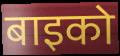
बाइको